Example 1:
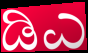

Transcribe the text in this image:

ಡಿಎ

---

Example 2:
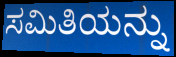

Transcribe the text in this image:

ಸಮಿತಿಯನ್ನು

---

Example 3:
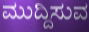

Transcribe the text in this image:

ಮುದ್ದಿಸುವ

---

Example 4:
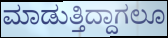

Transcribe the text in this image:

ಮಾಡುತ್ತಿದ್ದಾಗಲೂ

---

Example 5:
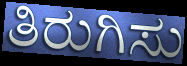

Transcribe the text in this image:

ತಿರುಗಿಸು